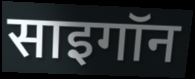
साइगॉन